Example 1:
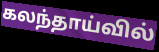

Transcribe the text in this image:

கலந்தாய்வில்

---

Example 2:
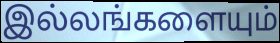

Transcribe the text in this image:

இல்லங்களையும்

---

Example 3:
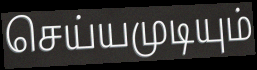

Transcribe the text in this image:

செய்யமுடியும்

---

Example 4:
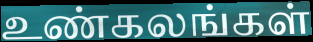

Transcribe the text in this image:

உண்கலங்கள்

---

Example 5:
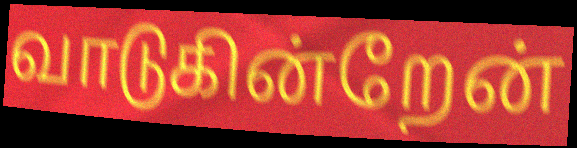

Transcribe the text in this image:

வாடுகின்றேன்